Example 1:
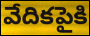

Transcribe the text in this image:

వేదికపైకి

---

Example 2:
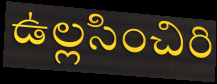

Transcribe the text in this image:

ఉల్లసించిరి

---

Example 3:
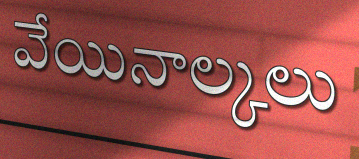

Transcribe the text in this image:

వేయినాల్కలు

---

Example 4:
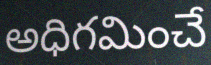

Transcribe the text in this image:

అధిగమించే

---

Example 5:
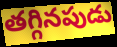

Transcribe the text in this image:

తగ్గినపుడు